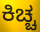
ಕಿಚ್ಚ